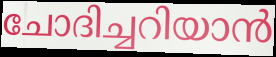
ചോദിച്ചറിയാൻ